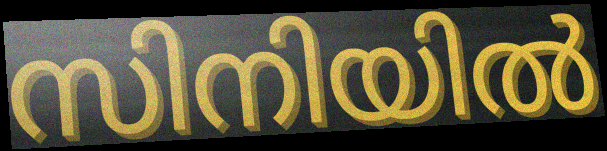
സിനിയിൽ